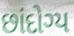
છાંદોગ્ય